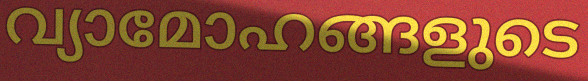
വ്യാമോഹങ്ങളുടെ